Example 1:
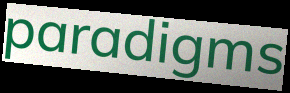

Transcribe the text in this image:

paradigms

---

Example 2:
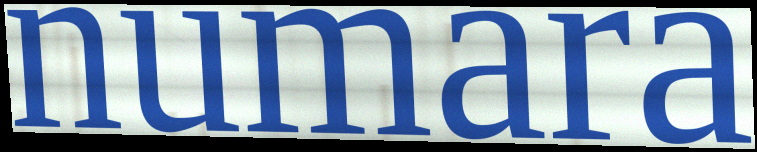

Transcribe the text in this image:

numara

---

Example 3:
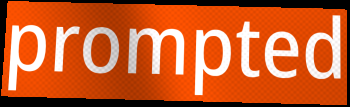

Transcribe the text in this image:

prompted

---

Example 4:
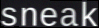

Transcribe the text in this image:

sneak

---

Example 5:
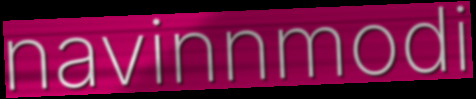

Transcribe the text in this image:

navinnmodi